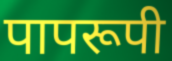
पापरूपी